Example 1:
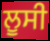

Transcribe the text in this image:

ਲੂਸੀ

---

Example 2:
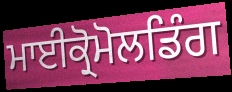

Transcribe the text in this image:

ਮਾਈਕ੍ਰੋਮੋਲਡਿੰਗ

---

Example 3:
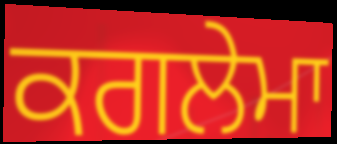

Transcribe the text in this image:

ਕਗਲੇਮਾ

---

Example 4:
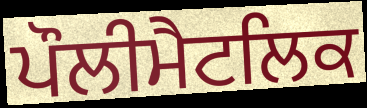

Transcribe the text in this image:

ਪੌਲੀਮੈਟਲਿਕ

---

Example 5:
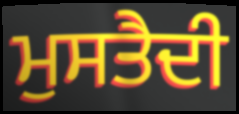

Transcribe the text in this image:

ਮੁਸਤੈਦੀ